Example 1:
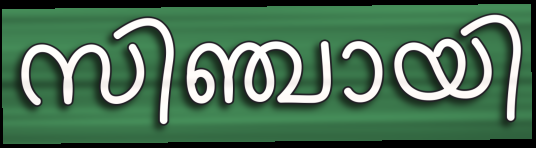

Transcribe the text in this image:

സിഞ്ചായി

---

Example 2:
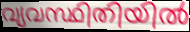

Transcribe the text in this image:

വ്യവസ്ഥിതിയിൽ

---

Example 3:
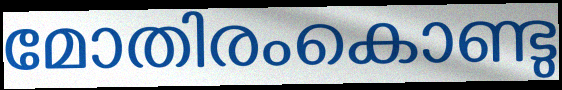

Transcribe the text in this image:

മോതിരംകൊണ്ടു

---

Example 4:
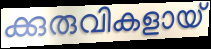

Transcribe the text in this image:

ക്കുരുവികളായ്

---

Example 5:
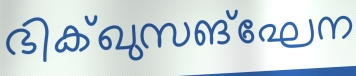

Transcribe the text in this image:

ഭിക്ഖുസങ്ഘേന